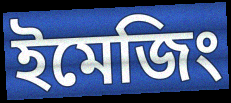
ইমেজিং